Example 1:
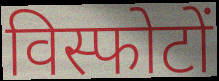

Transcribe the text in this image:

विस्फोटों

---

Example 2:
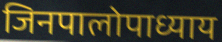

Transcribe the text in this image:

जिनपालोपाध्याय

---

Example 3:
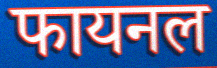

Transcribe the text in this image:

फायनल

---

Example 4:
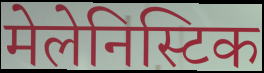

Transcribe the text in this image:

मेलेनिस्टिक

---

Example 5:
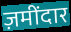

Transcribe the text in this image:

ज़मींदार